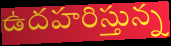
ఉదహరిస్తున్న